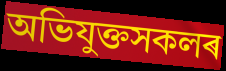
অভিযুক্তসকলৰ